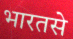
भारतसे